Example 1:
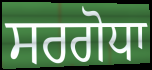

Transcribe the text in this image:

ਸਰਗੋਧਾ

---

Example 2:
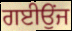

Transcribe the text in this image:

ਗਈਉਂਜ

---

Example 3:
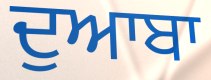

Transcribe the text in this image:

ਦੁਆਬਾ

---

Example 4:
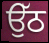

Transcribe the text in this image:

ਉੱਠ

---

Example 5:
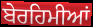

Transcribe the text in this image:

ਬੇਰਹਿਮੀਆਂ